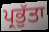
ਪ੍ਰਭੁੱਤਾ